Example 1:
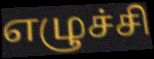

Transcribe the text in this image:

எழுச்சி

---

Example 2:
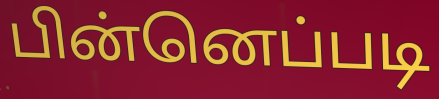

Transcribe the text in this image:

பின்னெப்படி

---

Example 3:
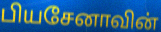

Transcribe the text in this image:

பியசேனாவின்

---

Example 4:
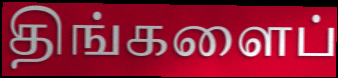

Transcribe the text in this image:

திங்களைப்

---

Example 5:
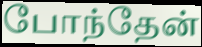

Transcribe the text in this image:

போந்தேன்